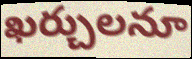
ఖర్చులనూ